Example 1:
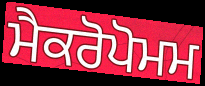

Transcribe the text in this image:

ਮੈਕਰੋਪੋਮਮ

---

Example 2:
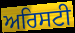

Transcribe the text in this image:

ਅਰਿਸਟੀ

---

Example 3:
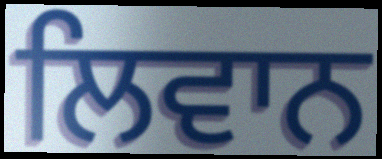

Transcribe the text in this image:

ਲਿਵਾਨ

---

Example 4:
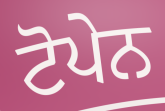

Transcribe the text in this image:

ਟੋਪੇਨ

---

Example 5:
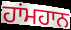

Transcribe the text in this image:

ਹਾਂਮਹਾਨ